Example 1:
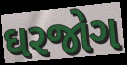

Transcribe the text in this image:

ઘરજોગ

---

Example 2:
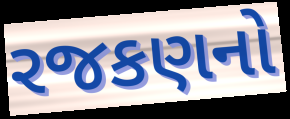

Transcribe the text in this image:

રજકણનો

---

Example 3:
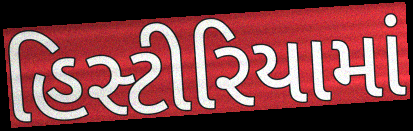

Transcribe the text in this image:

હિસ્ટીરિયામાં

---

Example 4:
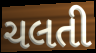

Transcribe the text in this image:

ચલતી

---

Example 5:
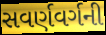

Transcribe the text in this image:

સવર્ણવર્ગની